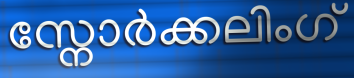
സ്നോർക്കലിംഗ്